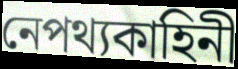
নেপথ্যকাহিনী